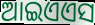
ଆଇଏଏସ